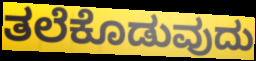
ತಲೆಕೊಡುವುದು